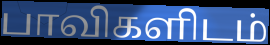
பாவிகளிடம்